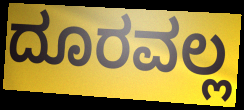
ದೂರವಲ್ಲ